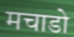
मचाडो